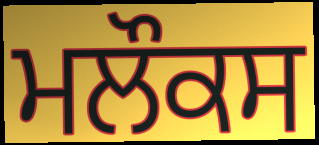
ਮਲੌਕਸ